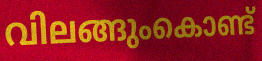
വിലങ്ങുംകൊണ്ട്